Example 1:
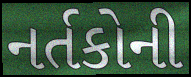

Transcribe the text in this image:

નર્તકોની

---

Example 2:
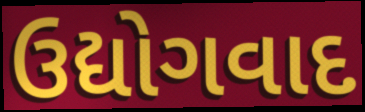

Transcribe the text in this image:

ઉદ્યોગવાદ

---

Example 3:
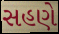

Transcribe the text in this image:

સહણે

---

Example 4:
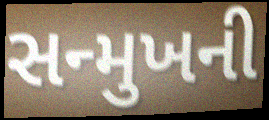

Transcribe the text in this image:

સન્મુખની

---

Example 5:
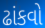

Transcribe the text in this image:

ઢાંકવો